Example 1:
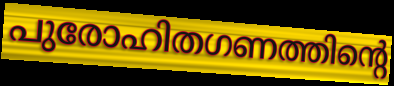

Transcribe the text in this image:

പുരോഹിതഗണത്തിന്റെ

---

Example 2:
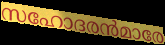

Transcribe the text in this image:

സഹോദരൻമാരേ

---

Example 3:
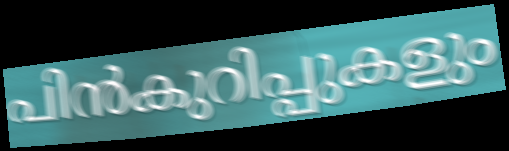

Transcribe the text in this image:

പിൻകുറിപ്പുകളും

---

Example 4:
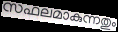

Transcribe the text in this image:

സഫലമാകുന്നതും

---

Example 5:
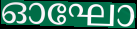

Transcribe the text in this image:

ഓഘോ